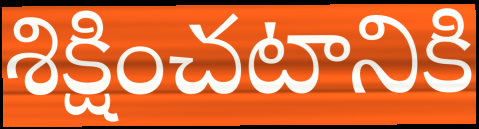
శిక్షించటానికి